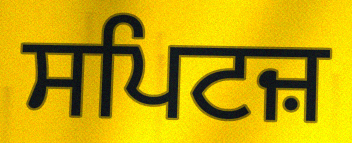
ਸਪਿਟਜ਼